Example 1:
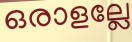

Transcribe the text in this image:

ഒരാളല്ലേ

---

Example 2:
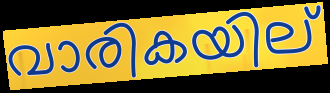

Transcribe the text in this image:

വാരികയില്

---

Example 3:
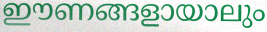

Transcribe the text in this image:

ഈണങ്ങളായാലും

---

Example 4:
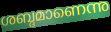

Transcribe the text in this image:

ശബ്ദമാണെന്നു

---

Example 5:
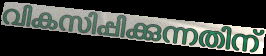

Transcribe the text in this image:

വികസിപ്പിക്കുന്നതിന്